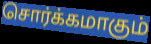
சொர்க்கமாகும்